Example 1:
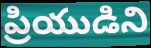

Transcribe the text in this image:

ప్రియుడిని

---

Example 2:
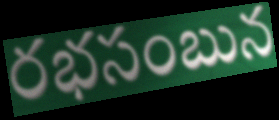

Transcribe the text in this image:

రభసంబున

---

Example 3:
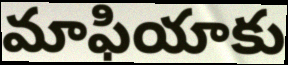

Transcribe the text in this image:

మాఫియాకు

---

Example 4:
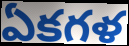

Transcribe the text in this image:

ఏకగళ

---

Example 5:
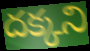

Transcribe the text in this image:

దక్కని